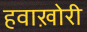
हवाख़ोरी